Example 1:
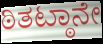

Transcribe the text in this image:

ಠಿತಟ್ಠಾನೇ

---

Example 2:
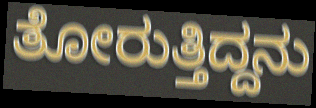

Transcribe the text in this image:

ತೋರುತ್ತಿದ್ದನು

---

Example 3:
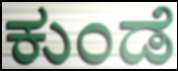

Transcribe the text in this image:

ಕುಂಡೆ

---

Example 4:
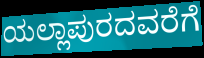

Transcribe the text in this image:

ಯಲ್ಲಾಪುರದವರೆಗೆ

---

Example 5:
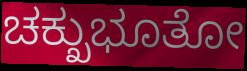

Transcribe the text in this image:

ಚಕ್ಖುಭೂತೋ